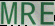
MRE